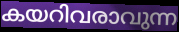
കയറിവരാവുന്ന